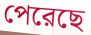
পেরেছে